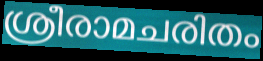
ശ്രീരാമചരിതം